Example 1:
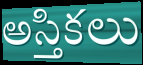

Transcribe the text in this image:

అస్తికలు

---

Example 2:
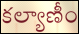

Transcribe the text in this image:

కల్యాణీం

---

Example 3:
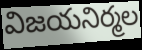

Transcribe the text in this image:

విజయనిర్మల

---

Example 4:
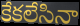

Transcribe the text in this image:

కేకలేసినా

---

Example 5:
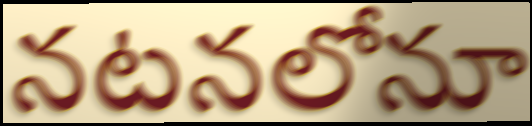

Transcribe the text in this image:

నటనలోనూ